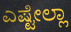
ಎಷ್ಟೇಲ್ಲಾ